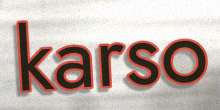
karso